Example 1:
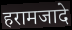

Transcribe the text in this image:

हरामजादे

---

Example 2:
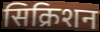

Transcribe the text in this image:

सिक्रिशन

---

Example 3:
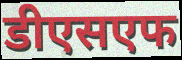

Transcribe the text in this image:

डीएसएफ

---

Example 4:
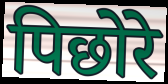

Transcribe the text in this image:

पिछोरे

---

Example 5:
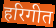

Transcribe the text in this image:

हरिगीत